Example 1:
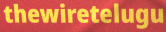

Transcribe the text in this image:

thewiretelugu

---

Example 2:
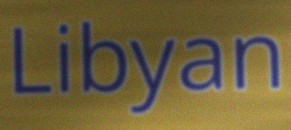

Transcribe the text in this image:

Libyan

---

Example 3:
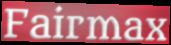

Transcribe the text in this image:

Fairmax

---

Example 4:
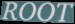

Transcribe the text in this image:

ROOT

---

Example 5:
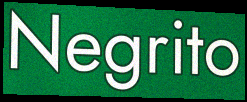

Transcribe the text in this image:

Negrito